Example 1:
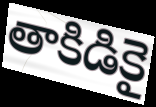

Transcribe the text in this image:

తాకిడికై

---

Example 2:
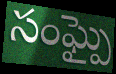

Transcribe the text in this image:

సంఘ్పై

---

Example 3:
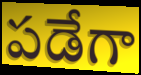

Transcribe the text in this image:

పడేగా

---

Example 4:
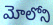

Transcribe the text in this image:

మోలోని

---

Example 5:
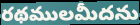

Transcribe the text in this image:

రథములమీదను